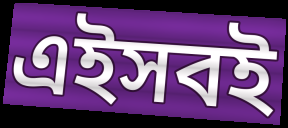
এইসবই